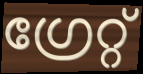
ഗ്രേറ്റ്